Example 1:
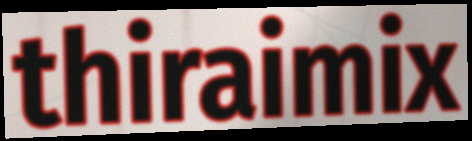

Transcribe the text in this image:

thiraimix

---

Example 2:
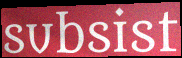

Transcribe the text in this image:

subsist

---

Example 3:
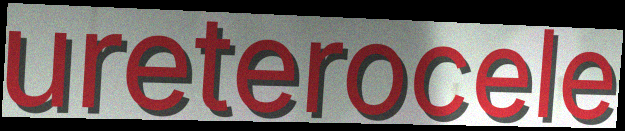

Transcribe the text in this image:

ureterocele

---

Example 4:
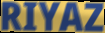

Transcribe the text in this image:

RIYAZ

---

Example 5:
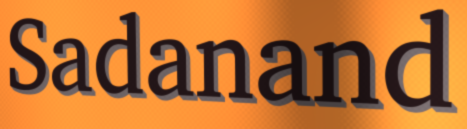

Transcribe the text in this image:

Sadanand